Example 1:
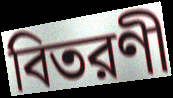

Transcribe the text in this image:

বিতরণী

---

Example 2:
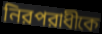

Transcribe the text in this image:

নিরপরাধীকে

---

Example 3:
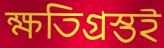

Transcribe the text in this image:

ক্ষতিগ্রস্তই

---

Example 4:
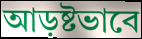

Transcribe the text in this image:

আড়ষ্টভাবে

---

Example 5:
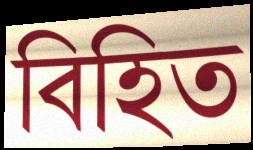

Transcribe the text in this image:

বিহিত